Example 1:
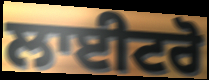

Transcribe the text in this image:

ਲਾਈਟਰੋ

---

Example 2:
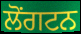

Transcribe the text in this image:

ਲੋਂਗਟਨ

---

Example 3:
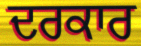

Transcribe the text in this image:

ਦਰਕਾਰ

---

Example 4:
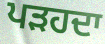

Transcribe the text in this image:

ਪੜਹਦਾ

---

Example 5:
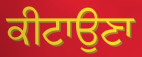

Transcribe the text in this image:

ਕੀਟਾਉਣਾ